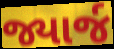
જ્યાર્જ